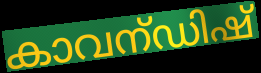
കാവന്ഡിഷ്